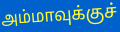
அம்மாவுக்குச்